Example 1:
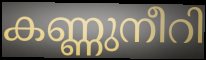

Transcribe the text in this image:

കണ്ണുനീറി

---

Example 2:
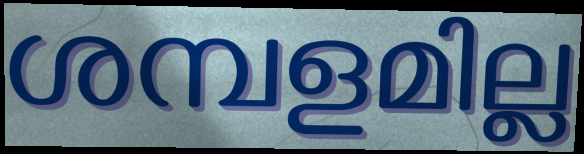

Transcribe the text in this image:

ശമ്പളമില്ല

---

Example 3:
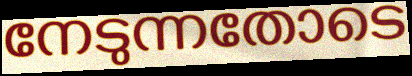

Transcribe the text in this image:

നേടുന്നതോടെ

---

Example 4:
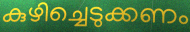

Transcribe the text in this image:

കുഴിച്ചെടുക്കണം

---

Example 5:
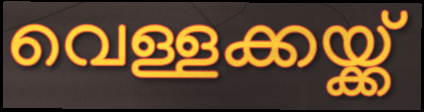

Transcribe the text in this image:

വെള്ളക്കയ്ക്ക്